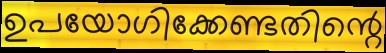
ഉപയോഗിക്കേണ്ടതിന്റെ